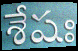
శేషః